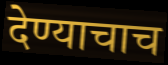
देण्याचाच